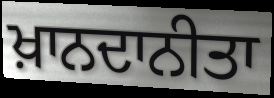
ਖ਼ਾਨਦਾਨੀਤਾ